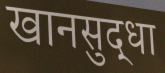
खानसुद्धा